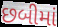
છબીમાં